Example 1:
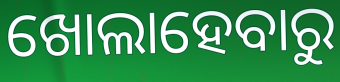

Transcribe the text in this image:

ଖୋଲାହେବାରୁ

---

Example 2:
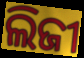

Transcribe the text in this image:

ଲିଜୀ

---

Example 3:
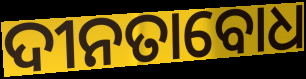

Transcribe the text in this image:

ଦୀନତାବୋଧ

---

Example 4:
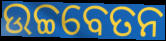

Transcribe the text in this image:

ଉଚ୍ଚବେତନ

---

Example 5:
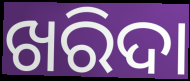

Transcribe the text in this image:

ଖରିଦା